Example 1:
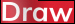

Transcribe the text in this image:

Draw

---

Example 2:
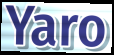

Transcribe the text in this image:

Yaro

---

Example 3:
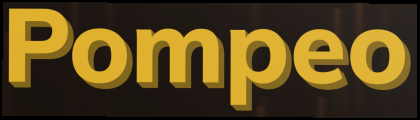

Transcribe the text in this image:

Pompeo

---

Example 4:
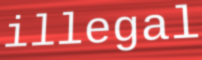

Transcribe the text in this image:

illegal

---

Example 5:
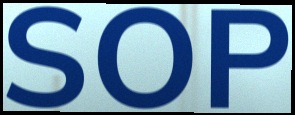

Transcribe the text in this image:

SOP